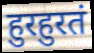
हुरहुरतं